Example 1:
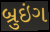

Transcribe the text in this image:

બ્રુઇંગ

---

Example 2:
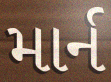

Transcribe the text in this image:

માર્ન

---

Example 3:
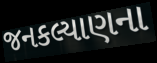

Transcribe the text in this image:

જનકલ્યાણના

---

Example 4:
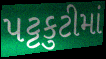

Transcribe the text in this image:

પટ્ટકુટીમાં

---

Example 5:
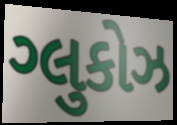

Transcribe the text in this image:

ગ્લુકોઝ